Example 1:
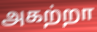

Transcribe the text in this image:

அகற்றா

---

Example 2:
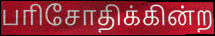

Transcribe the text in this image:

பரிசோதிக்கின்ற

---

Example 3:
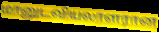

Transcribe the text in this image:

மானுடவியலாளரான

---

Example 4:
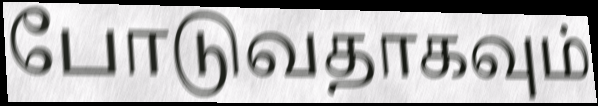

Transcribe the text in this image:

போடுவதாகவும்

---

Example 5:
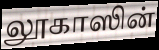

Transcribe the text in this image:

லூகாஸின்